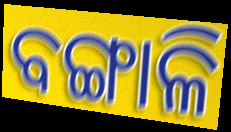
ବଙ୍ଗାଳି